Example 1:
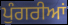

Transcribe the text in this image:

ਪੁੰਗਰੀਆਂ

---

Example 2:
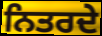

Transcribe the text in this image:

ਨਿਤਰਦੇ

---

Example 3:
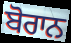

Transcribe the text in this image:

ਬੋਰਾਨ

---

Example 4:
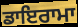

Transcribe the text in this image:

ਡਾਇਰਾਮਾ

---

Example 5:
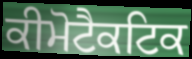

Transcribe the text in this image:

ਕੀਮੋਟੈਕਟਿਕ